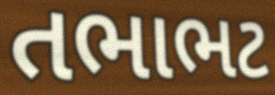
તભાભટ